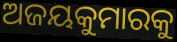
ଅଜୟକୁମାରକୁ